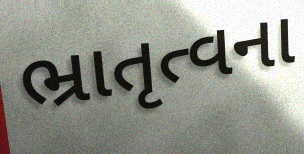
ભ્રાતૃત્વના